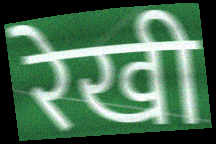
रेखी